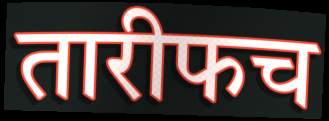
तारीफच